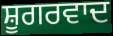
ਸ਼ੂਗਰਵਾਦ